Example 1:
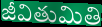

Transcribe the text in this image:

జీవితుమితి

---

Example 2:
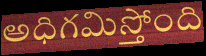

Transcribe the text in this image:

అధిగమిస్తోంది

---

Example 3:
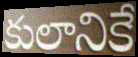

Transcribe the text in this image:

కులానికే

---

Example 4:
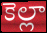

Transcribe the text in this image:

కెల్లా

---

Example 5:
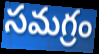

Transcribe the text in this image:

సమగ్రం